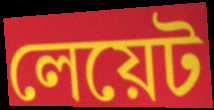
লেয়েট